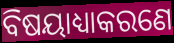
ବିଷୟାଧ୍ୟାକରଣେ